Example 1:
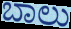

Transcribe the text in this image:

ಬಾಲು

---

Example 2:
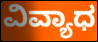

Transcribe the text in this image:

ವಿವ್ಯಾಧ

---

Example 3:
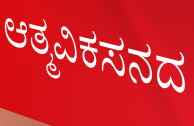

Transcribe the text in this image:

ಆತ್ಮವಿಕಸನದ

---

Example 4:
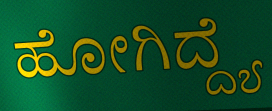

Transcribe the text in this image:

ಹೋಗಿದ್ದ್ಯೆ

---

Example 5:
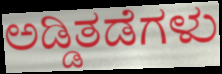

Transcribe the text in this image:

ಅಡ್ಡಿತಡೆಗಳು